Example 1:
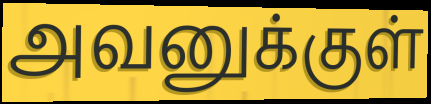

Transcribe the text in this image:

அவனுக்குள்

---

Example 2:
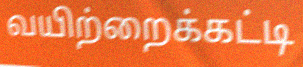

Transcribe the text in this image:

வயிற்றைக்கட்டி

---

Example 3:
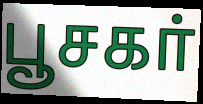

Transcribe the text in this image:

பூசகர்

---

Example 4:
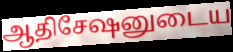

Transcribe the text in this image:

ஆதிசேஷனுடைய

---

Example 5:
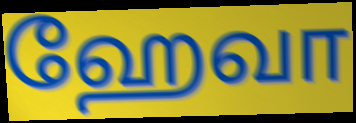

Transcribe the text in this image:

ஹேவா